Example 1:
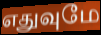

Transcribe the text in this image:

எதுவுமே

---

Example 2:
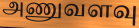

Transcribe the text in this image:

அணுவளவு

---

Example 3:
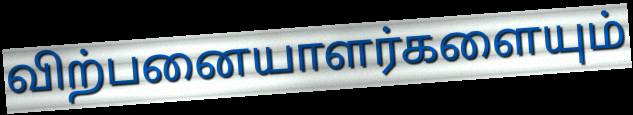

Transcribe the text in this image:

விற்பனையாளர்களையும்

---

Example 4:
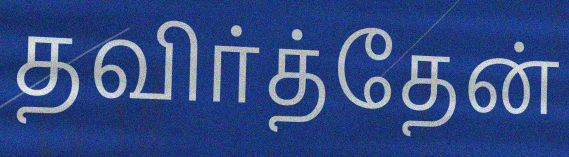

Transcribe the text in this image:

தவிர்த்தேன்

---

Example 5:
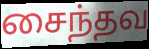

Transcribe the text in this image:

சைந்தவ